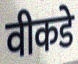
वीकडे